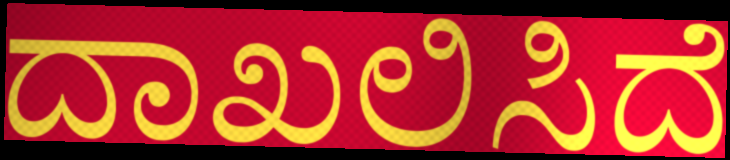
ದಾಖಲಿಸಿದೆ